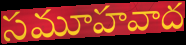
సమూహవాద